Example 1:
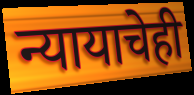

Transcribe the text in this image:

न्यायाचेही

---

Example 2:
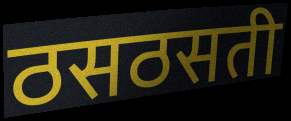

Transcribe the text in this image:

ठसठसती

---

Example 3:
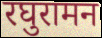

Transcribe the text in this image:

रघुरामन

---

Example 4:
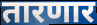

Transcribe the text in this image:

तारणार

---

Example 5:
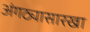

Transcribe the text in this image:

अंगठ्यासारखा